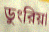
ডুংরিয়া